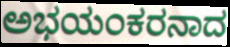
ಅಭಯಂಕರನಾದ